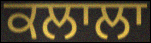
ਕਲਾਲਾ